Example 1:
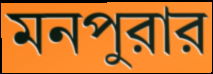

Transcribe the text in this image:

মনপুরার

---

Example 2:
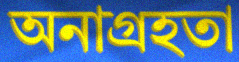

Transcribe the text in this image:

অনাগ্রহতা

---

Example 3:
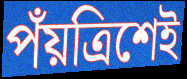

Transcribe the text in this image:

পঁয়ত্রিশেই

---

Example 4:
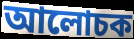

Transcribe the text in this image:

আলোচক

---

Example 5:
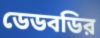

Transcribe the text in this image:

ডেডবডির